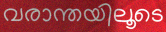
വരാന്തയിലൂടെ